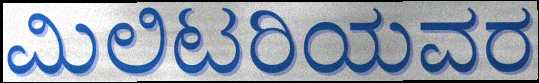
ಮಿಲಿಟರಿಯವರ